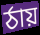
ঠায়